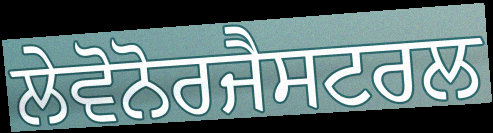
ਲੇਵੋਨੋਰਜੈਸਟਰਲ